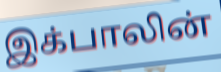
இக்பாலின்